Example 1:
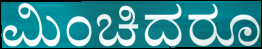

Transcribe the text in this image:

ಮಿಂಚಿದರೂ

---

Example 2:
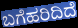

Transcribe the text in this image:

ಬಗೆಹರಿದಿದೆ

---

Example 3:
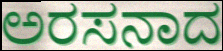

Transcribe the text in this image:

ಅರಸನಾದ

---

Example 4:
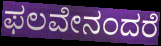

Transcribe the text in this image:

ಫಲವೇನಂದರೆ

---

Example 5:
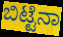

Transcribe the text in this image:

ಬಿಟ್ಟೆನಾ